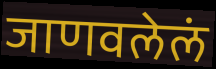
जाणवलेलं